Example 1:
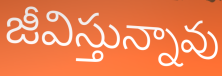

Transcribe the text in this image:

జీవిస్తున్నావు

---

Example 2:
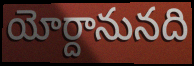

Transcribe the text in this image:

యోర్దానునది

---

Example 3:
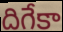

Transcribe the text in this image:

దిగేకా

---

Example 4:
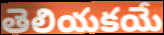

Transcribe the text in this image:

తెలియకయే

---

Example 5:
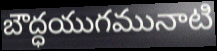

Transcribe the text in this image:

బౌద్ధయుగమునాటి